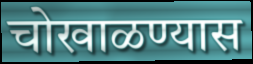
चोखाळण्यास